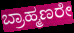
ಬ್ರಾಹ್ಮಣರೇ